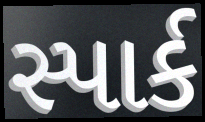
સ્પાર્ક